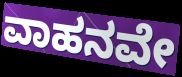
ವಾಹನವೇ